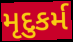
મૃદુકર્મ